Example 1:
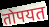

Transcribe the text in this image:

तोपयत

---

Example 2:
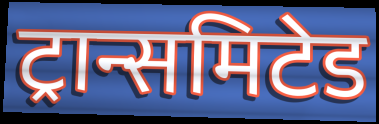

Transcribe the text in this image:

ट्रान्समिटेड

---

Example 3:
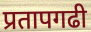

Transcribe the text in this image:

प्रतापगढी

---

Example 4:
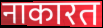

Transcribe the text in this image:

नाकारत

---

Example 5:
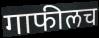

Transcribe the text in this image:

गाफीलच